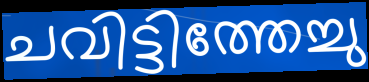
ചവിട്ടിത്തേച്ചു